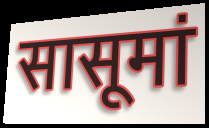
सासूमां